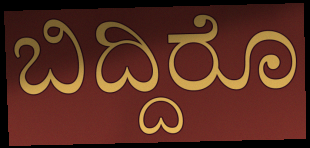
ಬಿದ್ದಿರೊ